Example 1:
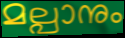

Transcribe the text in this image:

മല്പാനും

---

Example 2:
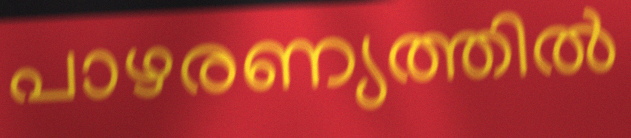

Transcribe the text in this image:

പാഴരണ്യത്തിൽ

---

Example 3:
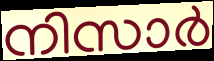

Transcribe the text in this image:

നിസാർ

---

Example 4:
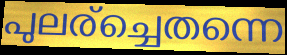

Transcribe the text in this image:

പുലര്ച്ചെതന്നെ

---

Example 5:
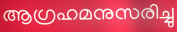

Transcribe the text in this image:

ആഗ്രഹമനുസരിച്ചു